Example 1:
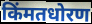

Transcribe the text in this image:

किंमतधोरण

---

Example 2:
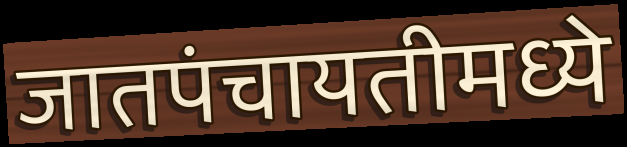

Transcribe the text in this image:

जातपंचायतीमध्ये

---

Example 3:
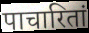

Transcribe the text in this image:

पाचारितां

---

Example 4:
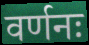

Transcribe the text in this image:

वर्णनः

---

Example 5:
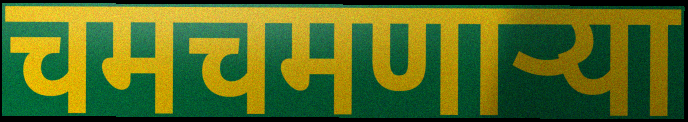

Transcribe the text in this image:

चमचमणाऱ्या